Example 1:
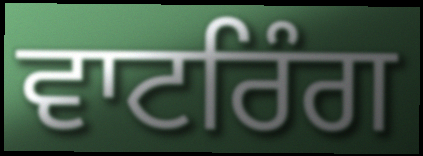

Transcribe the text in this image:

ਵਾਟਰਿੰਗ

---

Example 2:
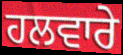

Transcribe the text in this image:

ਹਲਵਾਰੇ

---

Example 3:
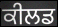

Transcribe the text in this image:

ਕੀਲਡ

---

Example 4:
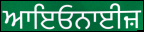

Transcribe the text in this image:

ਆਇਓਨਾਈਜ਼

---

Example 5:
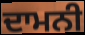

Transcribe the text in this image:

ਦਾਮਨੀ